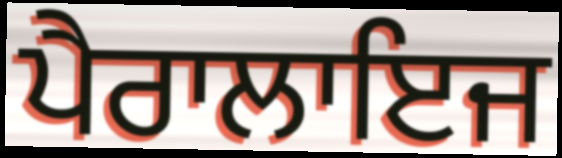
ਪੈਰਾਲਾਇਜ